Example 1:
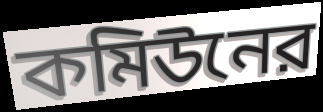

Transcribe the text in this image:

কমিউনের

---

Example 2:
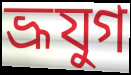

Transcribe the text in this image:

ভ্রূযুগ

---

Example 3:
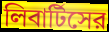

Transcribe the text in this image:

লিবার্টিসের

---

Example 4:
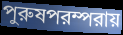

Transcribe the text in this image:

পুরুষপরম্পরায়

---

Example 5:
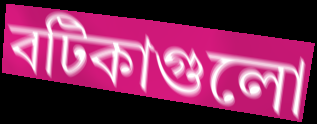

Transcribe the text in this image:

বটিকাগুলো